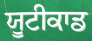
ਯੂਟੀਕਾਡ